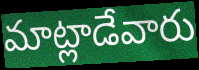
మాట్లాడేవారు